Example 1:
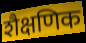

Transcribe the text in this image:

शैक्षणिक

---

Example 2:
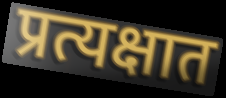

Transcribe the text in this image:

प्रत्यक्षात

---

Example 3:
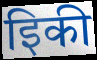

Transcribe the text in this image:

इिकी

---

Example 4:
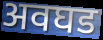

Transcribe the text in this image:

अवघड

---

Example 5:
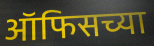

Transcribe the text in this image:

ऑफिसच्या